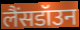
लैंसडॉउन